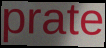
prate